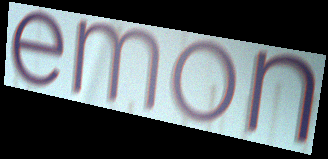
emon